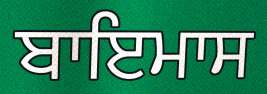
ਬਾਇਮਾਸ